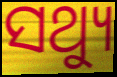
ସଥ୍ୟୁ